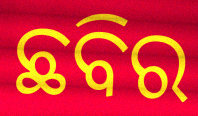
ଛବିର